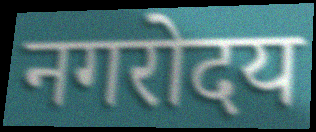
नगरोदय